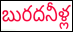
బురదనీళ్ల